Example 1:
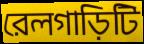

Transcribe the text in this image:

রেলগাড়িটি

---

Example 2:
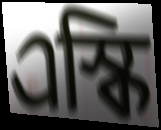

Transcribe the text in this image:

এস্কি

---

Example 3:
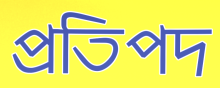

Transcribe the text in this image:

প্রতিপদ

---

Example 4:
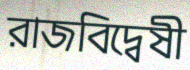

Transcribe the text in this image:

রাজবিদ্বেষী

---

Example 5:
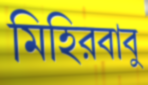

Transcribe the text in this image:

মিহিরবাবু